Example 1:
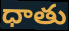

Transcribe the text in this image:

ధాతు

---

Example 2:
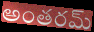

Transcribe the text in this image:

అంతరమ్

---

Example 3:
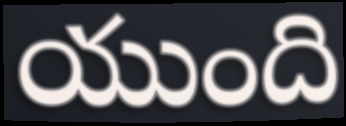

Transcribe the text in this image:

యుంది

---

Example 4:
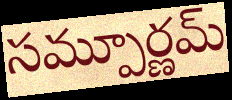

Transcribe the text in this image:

సమ్పూర్ణమ్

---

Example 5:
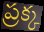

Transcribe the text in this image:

ప్రక్క